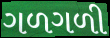
ગળગળી